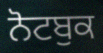
ਨੋਟਬੁਕ